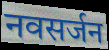
नवसर्जन